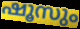
ഷൂസും